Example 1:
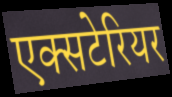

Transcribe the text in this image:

एक्सटेरियर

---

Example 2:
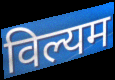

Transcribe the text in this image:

विल्यम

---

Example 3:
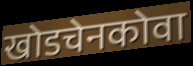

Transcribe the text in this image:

खोडचेनकोवा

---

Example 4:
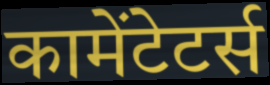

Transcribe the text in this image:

कामेंटेटर्स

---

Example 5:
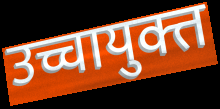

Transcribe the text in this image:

उच्चायुक्त